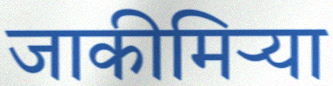
जाकीमिऱ्या